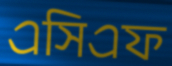
এসিএফ